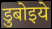
डुबोइये